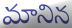
మానిన